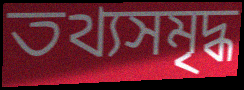
তথ্যসমৃদ্ধ